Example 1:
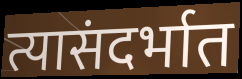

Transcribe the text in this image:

त्यासंदर्भात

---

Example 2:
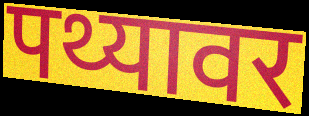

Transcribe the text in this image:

पथ्यावर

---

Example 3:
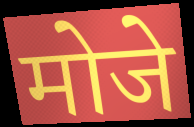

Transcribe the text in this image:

मोजे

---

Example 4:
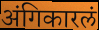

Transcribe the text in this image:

अंगिकारलं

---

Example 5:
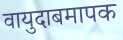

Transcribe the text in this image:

वायुदाबमापक